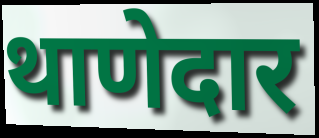
थाणेदार